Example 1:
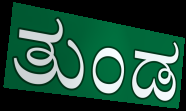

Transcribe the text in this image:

ತುಂಡ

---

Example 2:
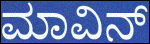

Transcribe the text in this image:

ಮಾವಿನ್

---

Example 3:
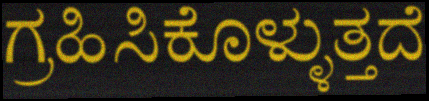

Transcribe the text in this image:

ಗ್ರಹಿಸಿಕೊಳ್ಳುತ್ತದೆ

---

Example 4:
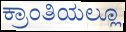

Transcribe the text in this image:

ಕ್ರಾಂತಿಯಲ್ಲೂ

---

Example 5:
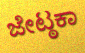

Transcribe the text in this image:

ಜೇಟ್ಠಕಾ